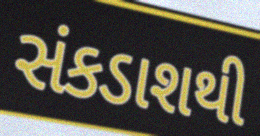
સંકડાશથી